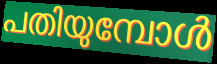
പതിയുമ്പോൾ